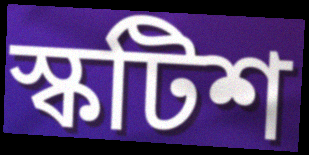
স্কটিশ